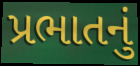
પ્રભાતનું